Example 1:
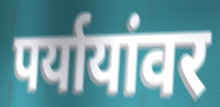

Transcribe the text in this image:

पर्यायांवर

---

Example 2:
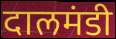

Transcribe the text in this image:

दालमंडी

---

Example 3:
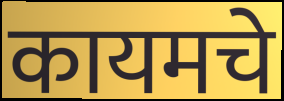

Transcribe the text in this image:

कायमचे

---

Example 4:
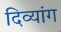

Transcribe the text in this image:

दिव्यांग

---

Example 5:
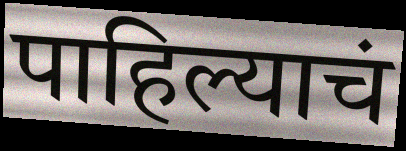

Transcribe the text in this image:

पाहिल्याचं